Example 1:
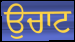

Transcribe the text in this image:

ਉਚਾਟ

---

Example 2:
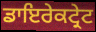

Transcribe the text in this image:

ਡਾਇਰੇਕਟ੍ਰੇਟ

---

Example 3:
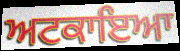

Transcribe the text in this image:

ਅਟਕਾਇਆ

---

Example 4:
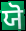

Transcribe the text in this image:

ਯੋ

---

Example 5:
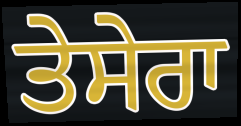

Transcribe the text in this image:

ਤੇਸੇਰਾ